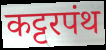
कट्टरपंथ